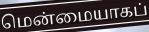
மென்மையாகப்